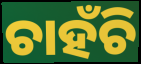
ଚାହଁଚି